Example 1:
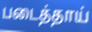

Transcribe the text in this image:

படைத்தாய்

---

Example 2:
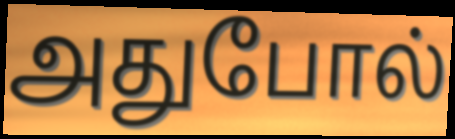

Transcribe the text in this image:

அதுபோல்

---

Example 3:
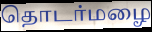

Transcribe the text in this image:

தொடர்மழை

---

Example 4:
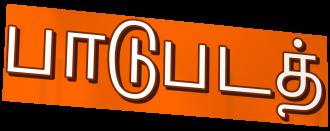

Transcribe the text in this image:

பாடுபடத்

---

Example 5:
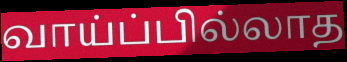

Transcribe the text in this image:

வாய்ப்பில்லாத